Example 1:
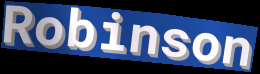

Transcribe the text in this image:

Robinson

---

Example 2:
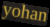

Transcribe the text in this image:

yohan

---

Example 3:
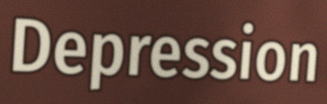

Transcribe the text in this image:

Depression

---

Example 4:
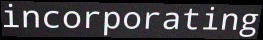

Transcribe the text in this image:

incorporating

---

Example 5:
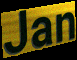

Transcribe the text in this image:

Jan